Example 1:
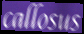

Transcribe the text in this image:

callosus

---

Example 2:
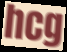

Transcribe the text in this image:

hcg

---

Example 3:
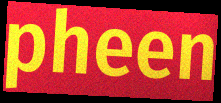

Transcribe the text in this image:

pheen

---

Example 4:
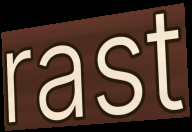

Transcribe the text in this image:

rast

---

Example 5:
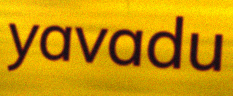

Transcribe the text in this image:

yavadu